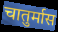
चातुर्मास